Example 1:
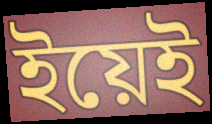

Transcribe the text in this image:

ইয়েই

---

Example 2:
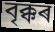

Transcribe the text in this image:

বৃক্কৰ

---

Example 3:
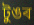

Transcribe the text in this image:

টুঙৰ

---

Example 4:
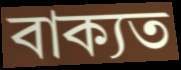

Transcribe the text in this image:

বাক্যত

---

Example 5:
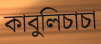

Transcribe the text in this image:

কাবুলিচাচা